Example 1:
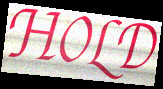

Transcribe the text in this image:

HOLD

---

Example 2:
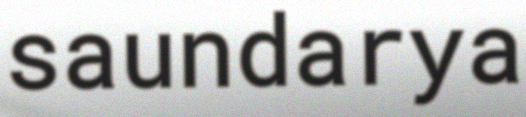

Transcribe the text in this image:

saundarya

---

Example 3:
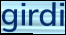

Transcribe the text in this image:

girdi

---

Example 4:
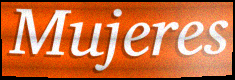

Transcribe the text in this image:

Mujeres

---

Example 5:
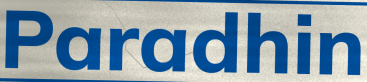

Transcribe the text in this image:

Paradhin